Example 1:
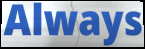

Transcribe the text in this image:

Always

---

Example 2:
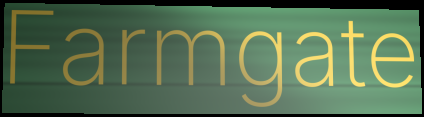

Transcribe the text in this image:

Farmgate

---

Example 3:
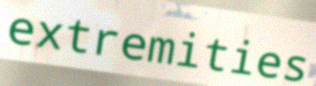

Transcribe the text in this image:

extremities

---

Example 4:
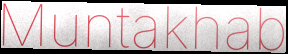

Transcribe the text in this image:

Muntakhab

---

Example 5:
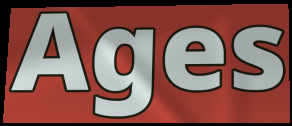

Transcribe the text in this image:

Ages